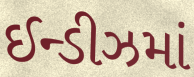
ઈન્ડીઝમાં